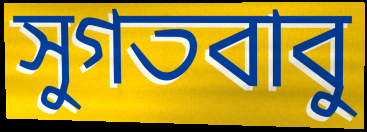
সুগতবাবু